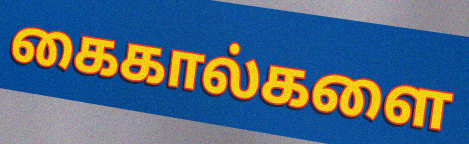
கைகால்களை